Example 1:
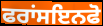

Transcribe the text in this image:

ਫਰਾਂਸਇਨਫੋ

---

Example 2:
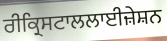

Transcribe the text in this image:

ਰੀਕ੍ਰਿਸਟਾਲਲਾਈਜ਼ੇਸ਼ਨ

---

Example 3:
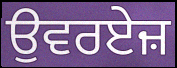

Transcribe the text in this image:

ਉਵਰਏਜ਼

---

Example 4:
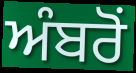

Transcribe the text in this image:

ਅੰਬਰੋਂ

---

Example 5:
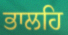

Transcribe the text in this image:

ਭਾਲਹਿ